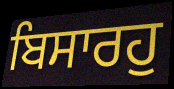
ਬਿਸਾਰਹੁ